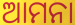
ଆମନା